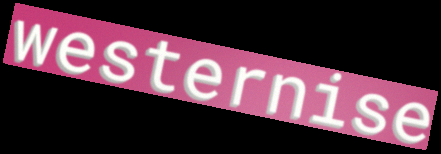
westernise